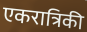
एकरात्रिकी